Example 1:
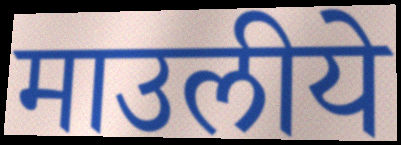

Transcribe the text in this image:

माउलीये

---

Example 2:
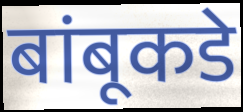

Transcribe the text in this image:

बांबूकडे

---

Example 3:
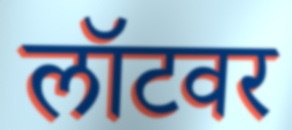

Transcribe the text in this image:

लॉटवर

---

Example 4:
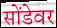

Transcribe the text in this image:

सोंडेवर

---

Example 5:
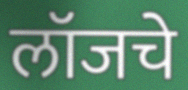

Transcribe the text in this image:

लॉजचे